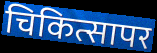
चिकित्सापर